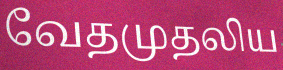
வேதமுதலிய